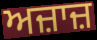
ਅਜ਼ਾਜ਼